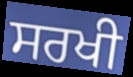
ਸਰਖੀ